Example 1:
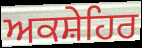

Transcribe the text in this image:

ਅਕਸ਼ੇਹਿਰ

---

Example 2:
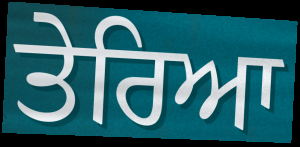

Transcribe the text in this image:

ਤੇਰਿਆ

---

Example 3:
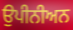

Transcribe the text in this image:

ਉਪੀਨੀਅਨ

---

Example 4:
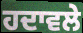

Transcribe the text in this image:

ਹਦਾਵਲੇ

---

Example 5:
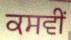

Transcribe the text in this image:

ਕਸਵੀਂ